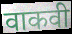
वाकवी